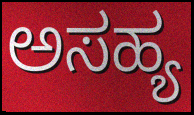
ಅಸಹ್ಯ